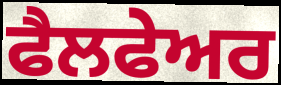
ਫੈਲਫੇਅਰ